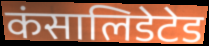
कंसालिडेटेड